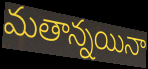
మతాన్నయినా